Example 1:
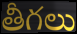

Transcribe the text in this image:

తీగలు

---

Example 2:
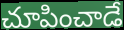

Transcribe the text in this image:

చూపించాడే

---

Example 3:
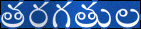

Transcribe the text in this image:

తరగతుల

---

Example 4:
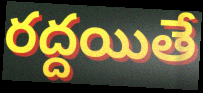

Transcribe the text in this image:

రద్దయితే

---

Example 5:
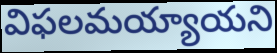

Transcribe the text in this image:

విఫలమయ్యాయని